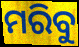
ମରିବୁ